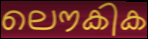
ലൌകിക